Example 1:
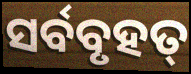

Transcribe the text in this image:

ସର୍ବବୃହତ୍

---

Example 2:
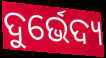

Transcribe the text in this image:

ଦୁର୍ଭେଦ୍ୟ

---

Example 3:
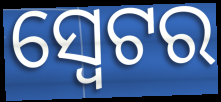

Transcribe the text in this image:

ସ୍ଵେଟର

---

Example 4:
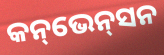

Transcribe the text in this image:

କନ୍‌ଭେନ୍‌ସନ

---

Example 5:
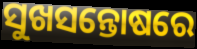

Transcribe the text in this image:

ସୁଖସନ୍ତୋଷରେ